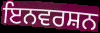
ਇਨਵਰਸ਼ਨ